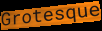
Grotesque